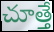
చూత్తే